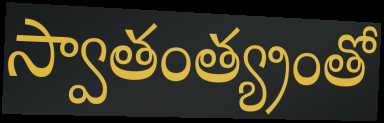
స్వాతంత్య్రంతో